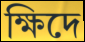
ক্ষিদে